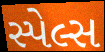
સ્પેલ્સ